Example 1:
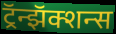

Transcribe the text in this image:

ट्रॅन्झॅक्शन्स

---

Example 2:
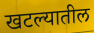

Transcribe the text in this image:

खटल्यातील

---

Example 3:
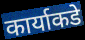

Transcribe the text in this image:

कार्याकडे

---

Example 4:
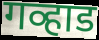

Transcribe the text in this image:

गव्हाड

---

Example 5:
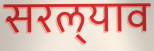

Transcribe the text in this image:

सरल्याव